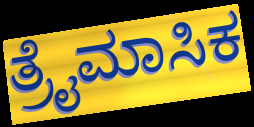
ತ್ರೈಮಾಸಿಕ